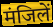
मंजिलें